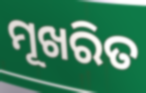
ମୂଖରିତ